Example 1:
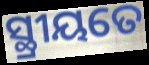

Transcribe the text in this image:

ସ୍ଥ୍ରୀୟତେ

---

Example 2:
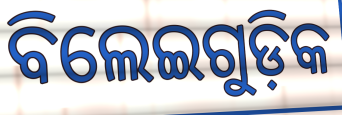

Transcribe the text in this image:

ବିଲେଇଗୁଡ଼ିକ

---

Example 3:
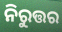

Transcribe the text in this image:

ନିରୁତ୍ତର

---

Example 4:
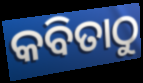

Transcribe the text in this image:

କବିତାଠୁ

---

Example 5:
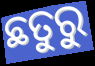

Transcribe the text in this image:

ଛତୁରୁ